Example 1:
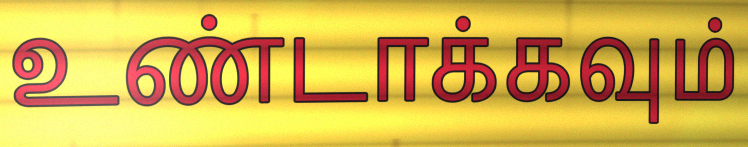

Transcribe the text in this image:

உண்டாக்கவும்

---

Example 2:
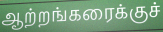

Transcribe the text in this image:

ஆற்றங்கரைக்குச்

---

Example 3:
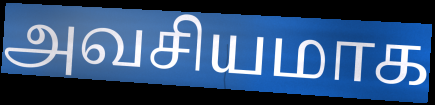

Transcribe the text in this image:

அவசியமாக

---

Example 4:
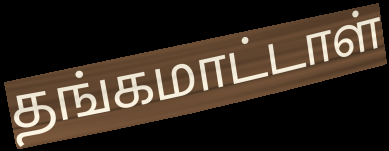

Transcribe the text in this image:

தங்கமாட்டாள்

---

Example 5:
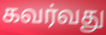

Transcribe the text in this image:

கவர்வது